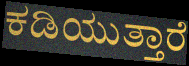
ಕಡಿಯುತ್ತಾರೆ